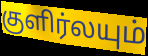
குளிர்லயும்